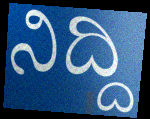
ನಿದ್ದಿ